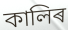
কালিৰ